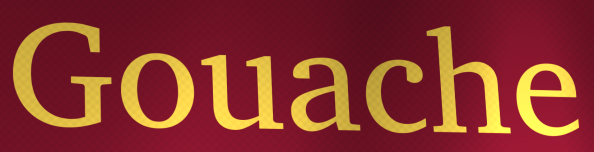
Gouache